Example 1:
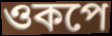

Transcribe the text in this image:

ওকপে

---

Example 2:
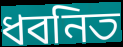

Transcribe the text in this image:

ধবনিত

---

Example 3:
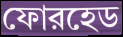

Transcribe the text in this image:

ফোরহেড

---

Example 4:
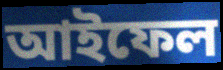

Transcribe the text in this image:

আইফেল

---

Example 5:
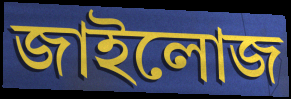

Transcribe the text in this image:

জাইলোজ